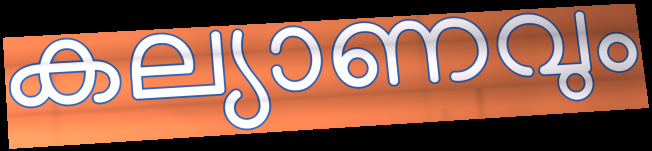
കല്യാണവും